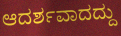
ಆದರ್ಶವಾದದ್ದು